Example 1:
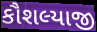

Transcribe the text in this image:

કૌશલ્યાજી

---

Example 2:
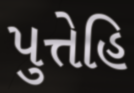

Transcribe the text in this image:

પુત્તેહિ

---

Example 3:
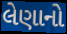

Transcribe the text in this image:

લેણાનો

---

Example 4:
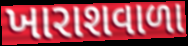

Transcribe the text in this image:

ખારાશવાળા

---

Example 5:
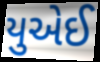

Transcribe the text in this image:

યુએઈ